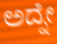
ಅದ್ನೇ